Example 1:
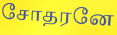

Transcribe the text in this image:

சோதரனே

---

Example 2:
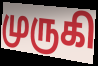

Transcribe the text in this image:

முருகி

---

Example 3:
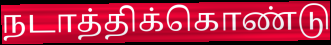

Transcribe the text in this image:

நடாத்திக்கொண்டு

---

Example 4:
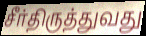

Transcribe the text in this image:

சீர்திருத்துவது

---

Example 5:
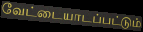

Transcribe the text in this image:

வேட்டையாடப்பட்டும்